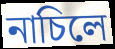
নাচিলে